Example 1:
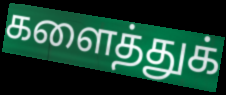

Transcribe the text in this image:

களைத்துக்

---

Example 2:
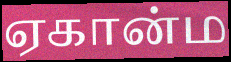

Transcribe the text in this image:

ஏகான்ம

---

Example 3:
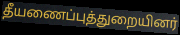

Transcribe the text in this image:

தீயணைப்புத்துறையினர்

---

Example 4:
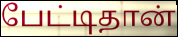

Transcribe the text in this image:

பேட்டிதான்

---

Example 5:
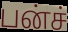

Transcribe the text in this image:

பன்ச்